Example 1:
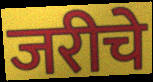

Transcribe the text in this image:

जरीचे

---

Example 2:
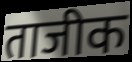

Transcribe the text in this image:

ताजीक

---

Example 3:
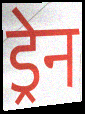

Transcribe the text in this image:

ड्रेन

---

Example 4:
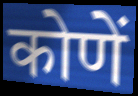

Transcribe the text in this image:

कोणें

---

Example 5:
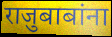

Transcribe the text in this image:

राजुबाबांना